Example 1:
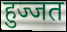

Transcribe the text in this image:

हुज्जत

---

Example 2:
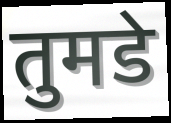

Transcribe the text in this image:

तुमडे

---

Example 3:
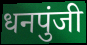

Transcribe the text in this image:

धनपुंजी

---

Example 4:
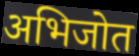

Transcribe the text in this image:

अभिजोत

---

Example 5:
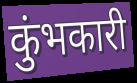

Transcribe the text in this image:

कुंभकारी